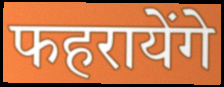
फहरायेंगे